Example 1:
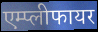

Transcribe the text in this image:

एम्प्लीफायर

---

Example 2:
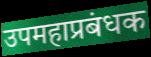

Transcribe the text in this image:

उपमहाप्रबंधक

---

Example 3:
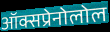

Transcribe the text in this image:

ऑक्सप्रेनोलोल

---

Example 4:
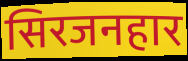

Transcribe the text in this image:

सिरजनहार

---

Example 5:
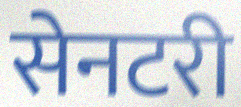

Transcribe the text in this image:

सेनटरी